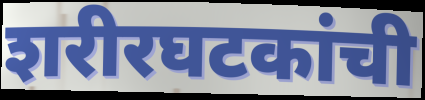
शरीरघटकांची